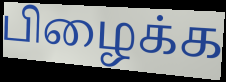
பிழைக்க